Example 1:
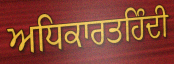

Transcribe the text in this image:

ਅਧਿਕਾਰਤਹਿੰਦੀ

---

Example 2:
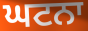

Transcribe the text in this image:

ਘਟਨਾ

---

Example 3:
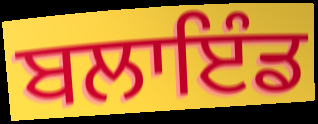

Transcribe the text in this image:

ਬਲਾਇੰਡ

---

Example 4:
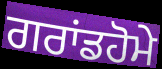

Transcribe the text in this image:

ਗਰਾਂਡਹੋਮੇ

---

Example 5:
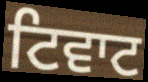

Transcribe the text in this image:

ਟਿਵਾਟ